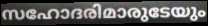
സഹോദരിമാരുടേയും